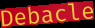
Debacle